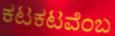
ಕಟಕಟವೆಂಬ